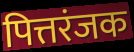
पित्तरंजक